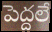
పెద్దలే